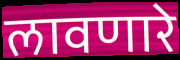
लावणारे